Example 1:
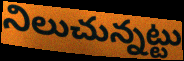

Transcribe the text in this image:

నిలుచున్నట్టు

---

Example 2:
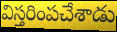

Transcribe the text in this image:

విస్తరింపచేశాడు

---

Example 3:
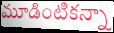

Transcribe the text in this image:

మూడింటికన్నా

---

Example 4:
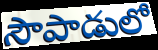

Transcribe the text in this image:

సౌపాడులో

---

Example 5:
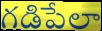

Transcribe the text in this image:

గడిపేలా